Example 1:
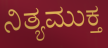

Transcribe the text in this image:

ನಿತ್ಯಮುಕ್ತ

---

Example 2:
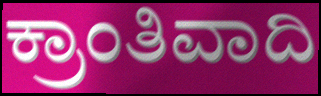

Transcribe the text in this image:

ಕ್ರಾಂತಿವಾದಿ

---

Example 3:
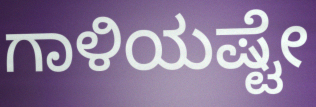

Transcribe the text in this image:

ಗಾಳಿಯಷ್ಟೇ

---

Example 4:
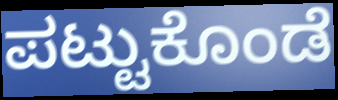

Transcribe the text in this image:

ಪಟ್ಟುಕೊಂಡೆ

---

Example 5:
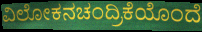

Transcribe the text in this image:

ವಿಲೋಕನಚಂದ್ರಿಕೆಯೊಂದೆ